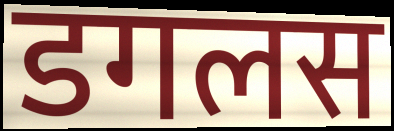
डगलस